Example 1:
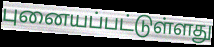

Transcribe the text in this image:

புனையப்பட்டுள்ளது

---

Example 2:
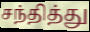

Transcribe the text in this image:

சந்தித்து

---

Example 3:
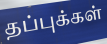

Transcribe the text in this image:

தப்புக்கள்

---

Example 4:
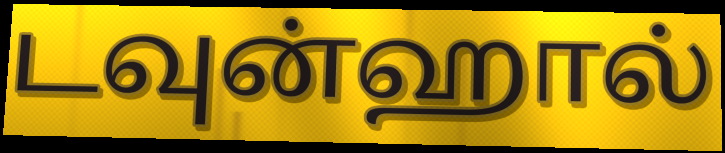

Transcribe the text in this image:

டவுன்ஹால்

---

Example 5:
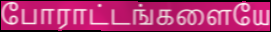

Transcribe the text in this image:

போராட்டங்களையே